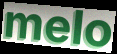
melo